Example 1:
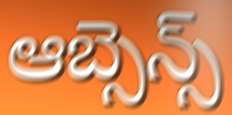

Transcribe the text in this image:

ఆబ్సెన్స్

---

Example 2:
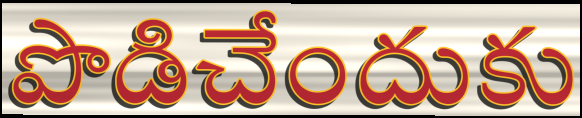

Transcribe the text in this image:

పొడిచేందుకు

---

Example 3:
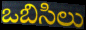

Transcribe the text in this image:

ఒబిసిలు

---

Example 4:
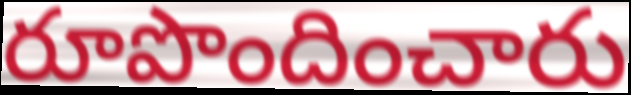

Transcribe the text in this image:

రూపొందించారు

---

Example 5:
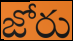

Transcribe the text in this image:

జోరు